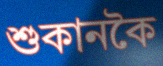
শুকানকৈ